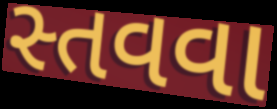
સ્તવવા